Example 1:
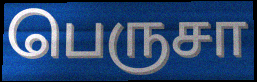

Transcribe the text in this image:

பெருசா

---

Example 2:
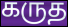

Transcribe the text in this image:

கருத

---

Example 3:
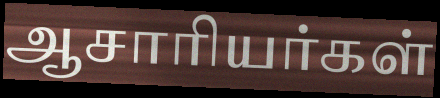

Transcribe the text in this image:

ஆசாரியர்கள்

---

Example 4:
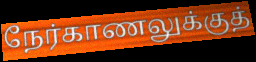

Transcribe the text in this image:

நேர்காணலுக்குத்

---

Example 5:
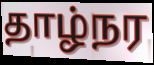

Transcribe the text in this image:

தாழ்நர